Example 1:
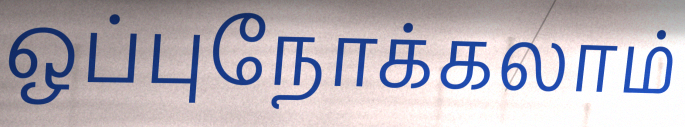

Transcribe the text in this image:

ஒப்புநோக்கலாம்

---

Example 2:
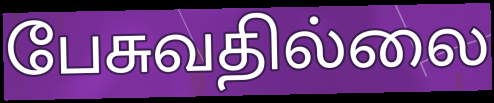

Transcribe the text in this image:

பேசுவதில்லை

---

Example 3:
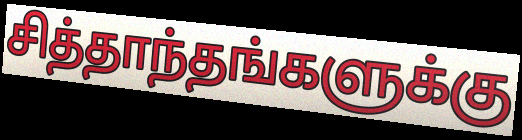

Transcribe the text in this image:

சித்தாந்தங்களுக்கு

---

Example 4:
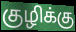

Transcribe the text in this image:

குழிக்கு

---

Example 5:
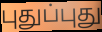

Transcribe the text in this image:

புதுப்புது